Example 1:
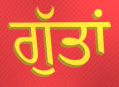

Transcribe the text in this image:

ਗੁੱਤਾਂ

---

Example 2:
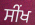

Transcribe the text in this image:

ਸੀਂਖ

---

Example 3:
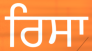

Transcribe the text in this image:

ਰਿਸਾ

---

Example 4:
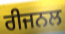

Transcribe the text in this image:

ਰੀਜਨਲ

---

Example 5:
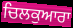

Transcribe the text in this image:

ਚਿਲਕੁਆਰਾ